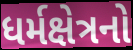
ધર્મક્ષેત્રનો